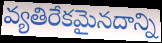
వ్యతిరేకమైనదాన్ని